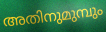
അതിനുമുമ്പും